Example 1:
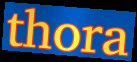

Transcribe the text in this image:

thora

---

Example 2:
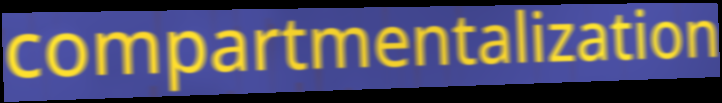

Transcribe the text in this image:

compartmentalization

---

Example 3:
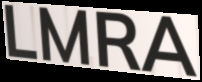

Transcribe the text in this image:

LMRA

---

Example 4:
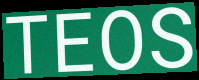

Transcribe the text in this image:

TEOS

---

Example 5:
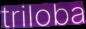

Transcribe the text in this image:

triloba